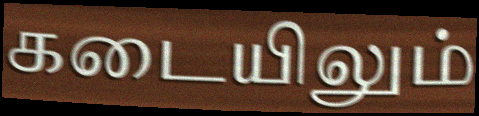
கடையிலும்